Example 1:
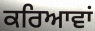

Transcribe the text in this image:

ਕਰਿਆਵਾਂ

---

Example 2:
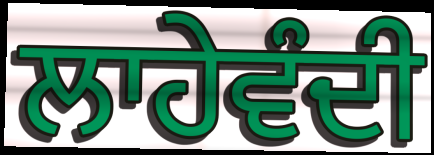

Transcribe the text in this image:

ਲਾਹੇਵੰਦੀ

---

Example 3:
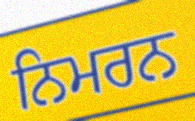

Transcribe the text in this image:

ਨਿਮਰਨ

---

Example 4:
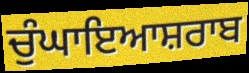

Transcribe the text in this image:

ਚੁੰਘਾਇਆਸ਼ਰਾਬ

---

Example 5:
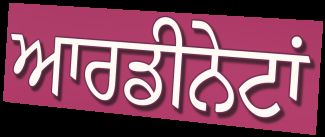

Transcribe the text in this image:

ਆਰਡੀਨੇਟਾਂ